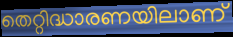
തെറ്റിദ്ധാരണയിലാണ്